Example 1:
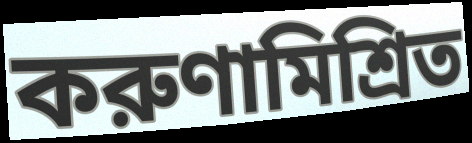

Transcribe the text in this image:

করুণামিশ্রিত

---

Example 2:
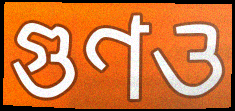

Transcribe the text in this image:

গুণও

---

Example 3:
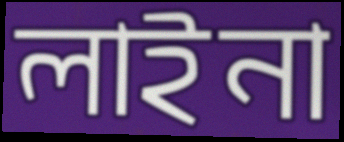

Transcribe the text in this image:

লাইনা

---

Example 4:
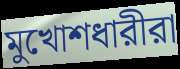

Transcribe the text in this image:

মুখোশধারীরা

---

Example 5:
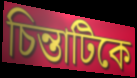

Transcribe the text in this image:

চিন্তাটিকে